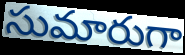
సుమారుగా